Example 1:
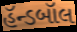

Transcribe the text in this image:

હૅન્ડબૉલ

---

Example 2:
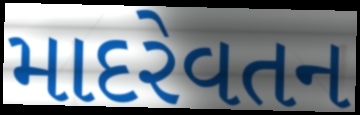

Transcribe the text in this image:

માદરેવતન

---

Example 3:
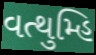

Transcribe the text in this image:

વત્થુમ્હિ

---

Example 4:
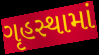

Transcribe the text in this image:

ગૃહસ્થામાં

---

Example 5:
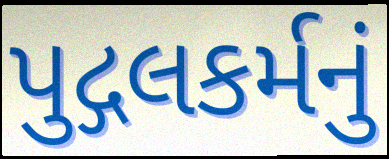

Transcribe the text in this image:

પુદ્ગલકર્મનું